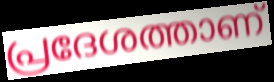
പ്രദേശത്താണ്